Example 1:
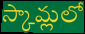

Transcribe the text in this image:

స్కామ్లలో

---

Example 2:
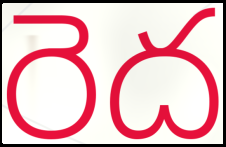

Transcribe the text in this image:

రెద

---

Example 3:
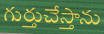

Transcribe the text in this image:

గుర్తుచేస్తాను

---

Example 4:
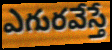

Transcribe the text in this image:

ఎగురవేస్తే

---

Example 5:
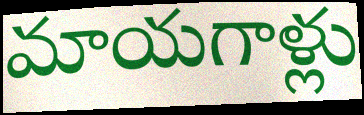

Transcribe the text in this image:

మాయగాళ్లు